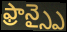
ఫ్రాన్స్పై